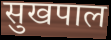
सुखपाल